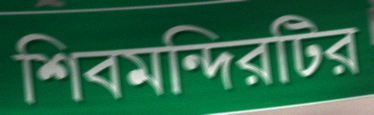
শিবমন্দিরটির